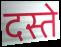
दस्ते